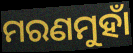
ମରଣମୁହାଁ